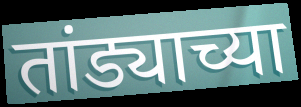
तांड्याच्या